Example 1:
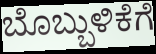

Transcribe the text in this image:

ಬೊಬ್ಬುಳಿಕೆಗೆ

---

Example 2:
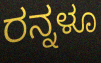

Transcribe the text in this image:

ರನ್ನಳೂ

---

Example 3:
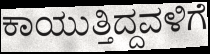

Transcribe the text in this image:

ಕಾಯುತ್ತಿದ್ದವಳಿಗೆ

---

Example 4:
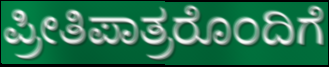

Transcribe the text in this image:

ಪ್ರೀತಿಪಾತ್ರರೊಂದಿಗೆ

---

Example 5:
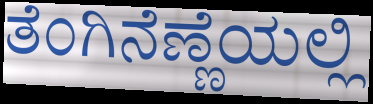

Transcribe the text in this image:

ತೆಂಗಿನೆಣ್ಣೆಯಲ್ಲಿ